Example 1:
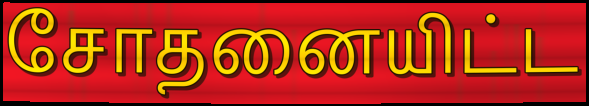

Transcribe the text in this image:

சோதனையிட்ட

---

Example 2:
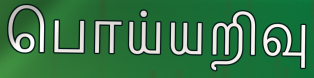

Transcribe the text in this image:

பொய்யறிவு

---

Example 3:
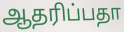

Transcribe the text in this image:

ஆதரிப்பதா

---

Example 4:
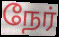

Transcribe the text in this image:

நேர்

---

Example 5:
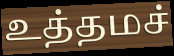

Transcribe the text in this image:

உத்தமச்